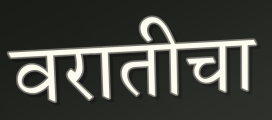
वरातीचा